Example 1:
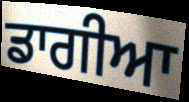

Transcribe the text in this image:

ਡਾਗੀਆ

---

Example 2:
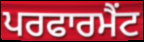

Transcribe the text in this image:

ਪਰਫਾਰਮੈਂਟ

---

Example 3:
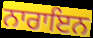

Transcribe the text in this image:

ਨਾਰਾਇਨ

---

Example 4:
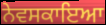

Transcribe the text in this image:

ਨੇਵਸਕਾਇਆ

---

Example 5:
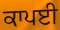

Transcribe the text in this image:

ਕਾਪਈ